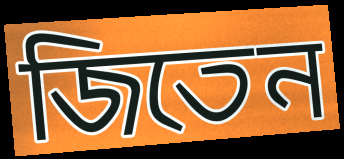
জিতেন